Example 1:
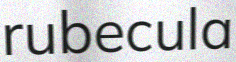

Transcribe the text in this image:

rubecula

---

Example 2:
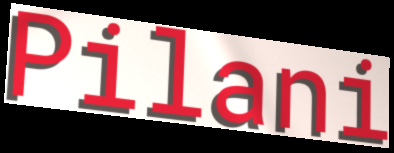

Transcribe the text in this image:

Pilani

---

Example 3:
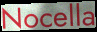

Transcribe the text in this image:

Nocella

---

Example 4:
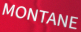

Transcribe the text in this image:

MONTANE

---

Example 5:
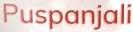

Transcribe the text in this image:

Puspanjali